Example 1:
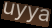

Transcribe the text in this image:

uyya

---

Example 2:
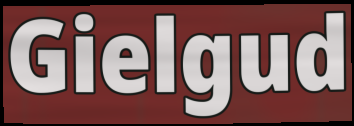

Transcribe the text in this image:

Gielgud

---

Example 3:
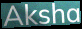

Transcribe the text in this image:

Aksha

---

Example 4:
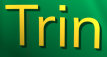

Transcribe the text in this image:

Trin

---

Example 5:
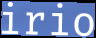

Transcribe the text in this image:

irio